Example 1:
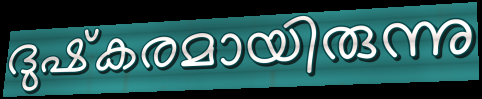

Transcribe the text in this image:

ദുഷ്‌കരമായിരുന്നു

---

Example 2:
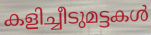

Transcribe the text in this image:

കളിച്ചീടുമട്ടകൾ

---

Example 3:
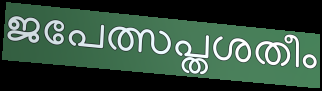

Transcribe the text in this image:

ജപേത്സപ്തശതീം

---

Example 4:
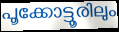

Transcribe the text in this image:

പൂക്കോട്ടൂരിലും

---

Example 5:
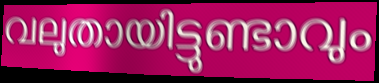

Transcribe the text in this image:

വലുതായിട്ടുണ്ടാവും